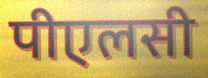
पीएलसी